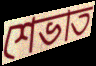
শেভাত